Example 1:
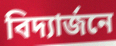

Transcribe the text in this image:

বিদ্যার্জনে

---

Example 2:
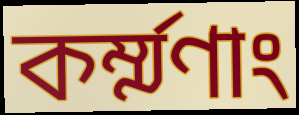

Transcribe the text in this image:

কর্ম্মণাং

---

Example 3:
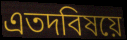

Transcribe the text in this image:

এতদবিষয়ে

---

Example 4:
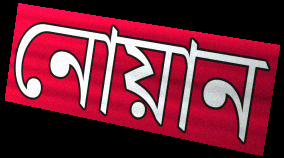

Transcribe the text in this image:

নোয়ান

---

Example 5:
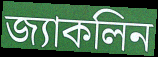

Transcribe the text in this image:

জ্যাকলিন